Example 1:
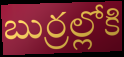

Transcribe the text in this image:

బుర్రల్లోకి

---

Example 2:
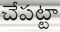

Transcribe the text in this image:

చేపట్టా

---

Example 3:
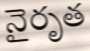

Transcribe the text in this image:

నైరృత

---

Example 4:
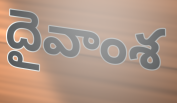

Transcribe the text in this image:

దైవాంశ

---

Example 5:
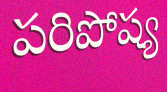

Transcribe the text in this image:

పరిపోష్య